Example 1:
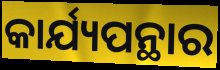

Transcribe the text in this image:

କାର୍ଯ୍ୟପନ୍ଥାର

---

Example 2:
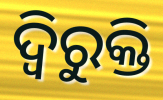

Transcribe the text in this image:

ଦ୍ୱିରୁକ୍ତି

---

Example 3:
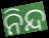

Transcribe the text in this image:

ନିନ୍ଦ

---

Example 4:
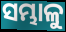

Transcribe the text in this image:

ସମ୍ଭାଳୁ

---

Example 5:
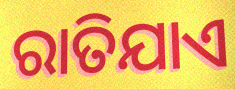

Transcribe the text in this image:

ରାତିଯାଏ